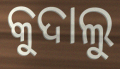
କୁଦାଲୁ